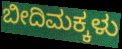
ಬೀದಿಮಕ್ಕಳು